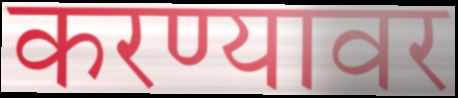
करण्यावर